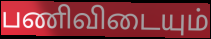
பணிவிடையும்